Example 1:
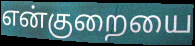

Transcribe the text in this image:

என்குறையை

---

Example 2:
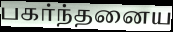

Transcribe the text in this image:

பகர்ந்தனைய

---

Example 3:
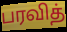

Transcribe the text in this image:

பரவித்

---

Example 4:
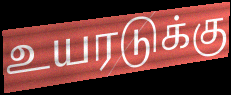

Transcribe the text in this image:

உயரடுக்கு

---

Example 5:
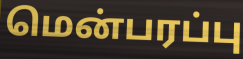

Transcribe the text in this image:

மென்பரப்பு